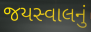
જયસ્વાલનું